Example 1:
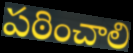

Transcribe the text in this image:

పఠించాలి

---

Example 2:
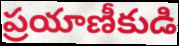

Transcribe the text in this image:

ప్రయాణీకుడి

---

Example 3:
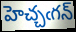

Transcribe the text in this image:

హెచ్చఁగన్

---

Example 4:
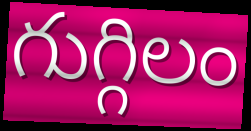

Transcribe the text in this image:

గుగ్గిలం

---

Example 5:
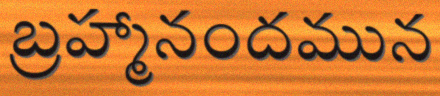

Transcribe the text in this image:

బ్రహ్మానందమున